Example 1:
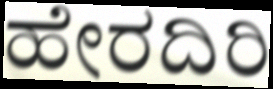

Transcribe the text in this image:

ಹೇರದಿರಿ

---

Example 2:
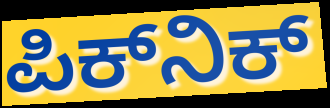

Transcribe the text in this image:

ಪಿಕ್‌ನಿಕ್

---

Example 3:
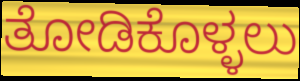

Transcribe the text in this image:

ತೋಡಿಕೊಳ್ಳಲು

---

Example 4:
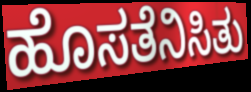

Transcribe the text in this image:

ಹೊಸತೆನಿಸಿತು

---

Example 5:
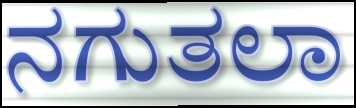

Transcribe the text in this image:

ನಗುತಲಾ